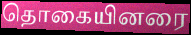
தொகையினரை